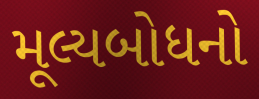
મૂલ્યબોધનો